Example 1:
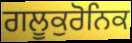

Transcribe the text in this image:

ਗਲੂਕੁਰੋਨਿਕ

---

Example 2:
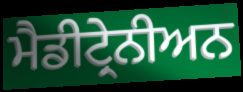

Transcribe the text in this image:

ਮੈਡੀਟ੍ਰੇਨੀਅਨ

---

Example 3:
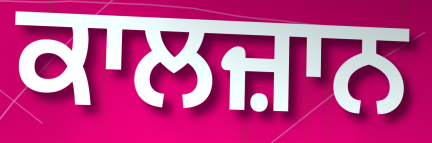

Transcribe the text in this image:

ਕਾਲਜ਼ਾਨ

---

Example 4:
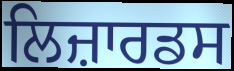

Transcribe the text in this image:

ਲਿਜ਼ਾਰਡਸ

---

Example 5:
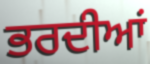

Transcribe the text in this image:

ਭਰਦੀਆਂ